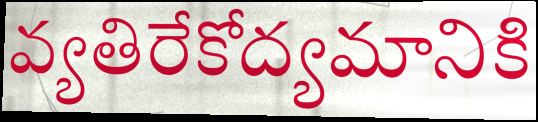
వ్యతిరేకోద్యమానికి